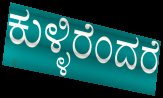
ಕುಳ್ಳಿರೆಂದರೆ